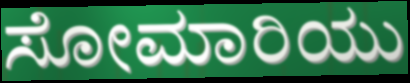
ಸೋಮಾರಿಯು